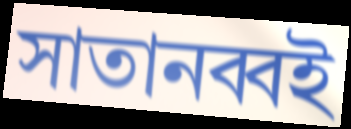
সাতানব্বই